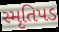
સ્મૃતિપડ